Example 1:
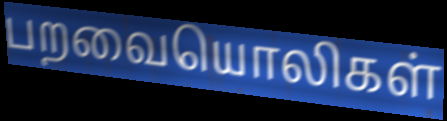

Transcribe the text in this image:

பறவையொலிகள்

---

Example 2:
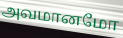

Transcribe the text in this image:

அவமானமோ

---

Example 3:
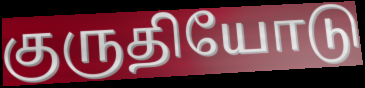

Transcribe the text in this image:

குருதியோடு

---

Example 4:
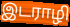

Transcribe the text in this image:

இடராழி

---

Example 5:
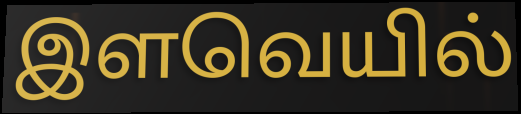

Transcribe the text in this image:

இளவெயில்